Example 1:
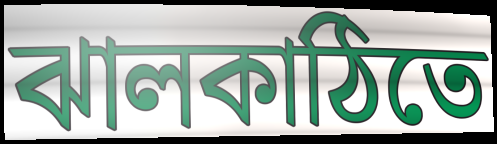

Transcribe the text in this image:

ঝালকাঠিতে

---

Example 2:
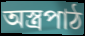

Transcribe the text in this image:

অস্ত্রপাঠ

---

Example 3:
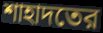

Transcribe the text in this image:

শাহাদতের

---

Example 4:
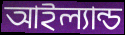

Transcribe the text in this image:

আইল্যান্ড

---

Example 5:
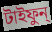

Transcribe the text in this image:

টাইফুন্